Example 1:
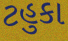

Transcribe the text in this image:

ટહુકા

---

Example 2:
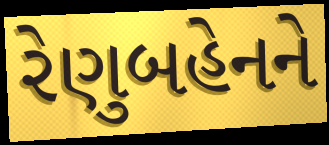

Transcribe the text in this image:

રેણુબહેનને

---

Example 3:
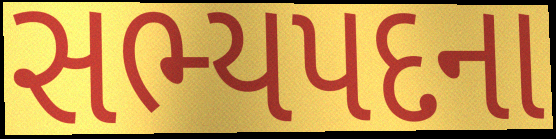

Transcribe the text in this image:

સભ્યપદના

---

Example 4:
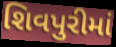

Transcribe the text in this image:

શિવપુરીમાં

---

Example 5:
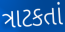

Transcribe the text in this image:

ત્રાટકતાં